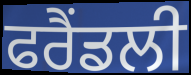
ਫਰੈਂਡਲੀ